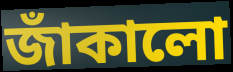
জাঁকালো